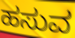
ಹಸುವ